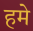
हमे